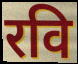
रवि